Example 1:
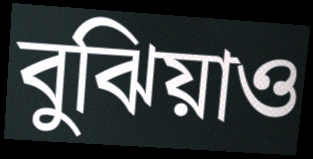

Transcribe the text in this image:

বুঝিয়াও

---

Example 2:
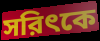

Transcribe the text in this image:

সরিৎকে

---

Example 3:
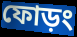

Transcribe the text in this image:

ফোড়ং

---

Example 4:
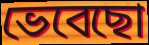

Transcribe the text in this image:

ভেবেছো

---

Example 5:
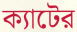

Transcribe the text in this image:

ক্যাটের